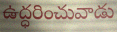
ఉద్ధరించువాడు